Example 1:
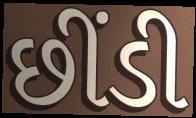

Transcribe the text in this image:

છીંડી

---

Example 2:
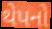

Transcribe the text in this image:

થેપનો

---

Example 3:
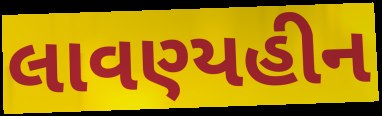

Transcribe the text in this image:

લાવણ્યહીન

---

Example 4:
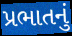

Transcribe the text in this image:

પ્રભાતનું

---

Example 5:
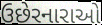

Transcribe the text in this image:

ઉછેરનારાઓ